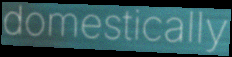
domestically